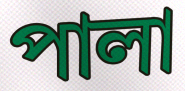
পালা